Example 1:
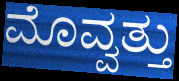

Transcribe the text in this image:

ಮೊವ್ವತ್ತು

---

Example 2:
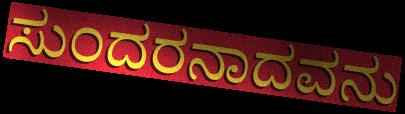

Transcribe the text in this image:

ಸುಂದರನಾದವನು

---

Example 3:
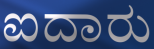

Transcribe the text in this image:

ಐದಾರು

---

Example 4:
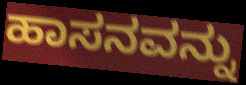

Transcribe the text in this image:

ಹಾಸನವನ್ನು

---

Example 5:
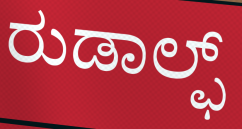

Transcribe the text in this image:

ರುಡಾಲ್ಫ್